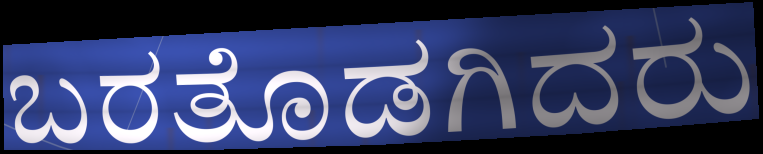
ಬರತೊಡಗಿದರು